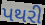
પથરી